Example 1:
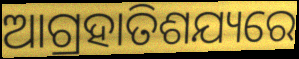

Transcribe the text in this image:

ଆଗ୍ରହାତିଶଯ୍ୟରେ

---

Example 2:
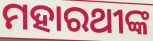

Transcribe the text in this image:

ମହାରଥୀଙ୍କ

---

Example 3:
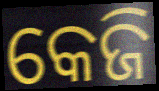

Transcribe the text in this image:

କେଜି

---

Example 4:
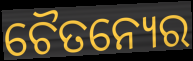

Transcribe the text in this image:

ଚୈତନ୍ୟେର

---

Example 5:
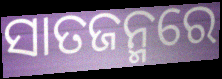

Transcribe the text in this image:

ସାତଜନ୍ମରେ